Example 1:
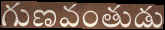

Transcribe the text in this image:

గుణవంతుడు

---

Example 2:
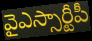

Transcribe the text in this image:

వైఎస్సార్టీపీ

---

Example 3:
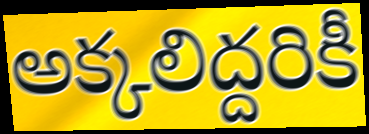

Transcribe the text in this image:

అక్కలిద్దరికీ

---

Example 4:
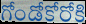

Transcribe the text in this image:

గోండోకోరోకి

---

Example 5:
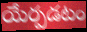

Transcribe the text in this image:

యేర్పడటం